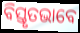
ବିସ୍ତୃତଭାବେ